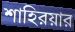
শাহিরয়ার